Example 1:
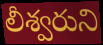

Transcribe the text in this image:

లీశ్వరుని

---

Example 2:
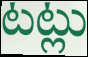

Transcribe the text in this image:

టట్లు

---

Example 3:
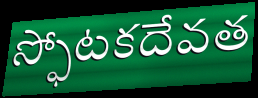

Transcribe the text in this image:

స్ఫోటకదేవత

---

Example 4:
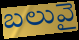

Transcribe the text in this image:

బలువై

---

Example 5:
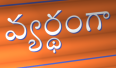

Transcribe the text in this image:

వ్యర్థంగా